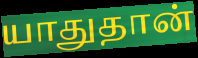
யாதுதான்